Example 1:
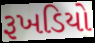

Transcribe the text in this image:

રૂખડિયો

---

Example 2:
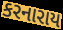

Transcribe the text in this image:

કરનારાય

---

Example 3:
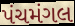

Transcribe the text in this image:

પંચમંગલ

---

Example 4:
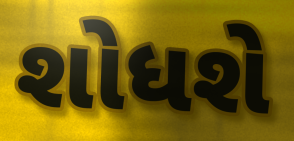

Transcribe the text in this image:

શોધશે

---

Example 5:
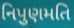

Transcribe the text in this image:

નિપુણમતિ